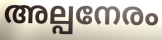
അല്പനേരം